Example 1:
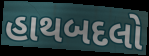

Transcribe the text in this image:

હાથબદલો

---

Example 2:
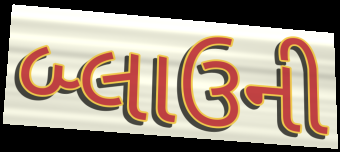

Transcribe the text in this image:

બ્લાઉની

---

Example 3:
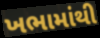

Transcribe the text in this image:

ખભામાંથી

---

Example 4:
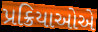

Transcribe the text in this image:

પ્રક્રિયાઓએ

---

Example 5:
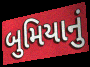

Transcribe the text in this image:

બુમિયાનું